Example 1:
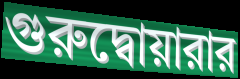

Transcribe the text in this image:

গুরুদ্বোয়ারার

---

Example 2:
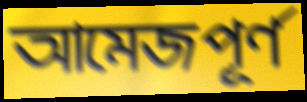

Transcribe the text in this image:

আমেজপূর্ণ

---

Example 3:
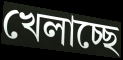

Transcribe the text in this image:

খেলাচ্ছে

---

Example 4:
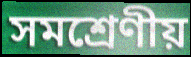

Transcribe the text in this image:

সমশ্রেণীয়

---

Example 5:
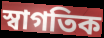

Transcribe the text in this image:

স্বাগতিক